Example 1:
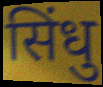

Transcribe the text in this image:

सिंधु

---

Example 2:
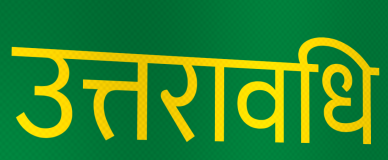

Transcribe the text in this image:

उत्तरावधि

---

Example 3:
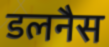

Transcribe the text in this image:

डलनैस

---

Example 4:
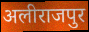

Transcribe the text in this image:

अलीराजपुर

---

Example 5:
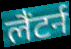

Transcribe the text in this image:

लैंटर्न